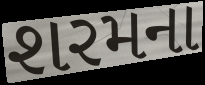
શરમના